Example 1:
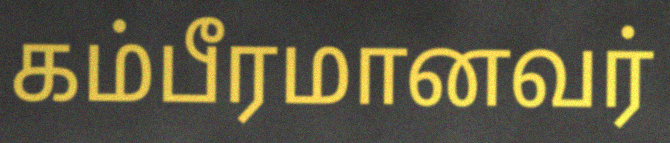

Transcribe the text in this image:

கம்பீரமானவர்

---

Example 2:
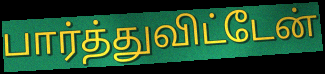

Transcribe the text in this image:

பார்த்துவிட்டேன்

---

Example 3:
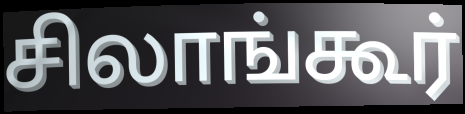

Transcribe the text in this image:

சிலாங்கூர்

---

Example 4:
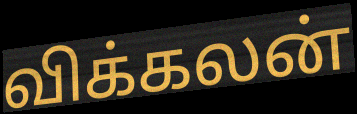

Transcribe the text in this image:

விக்கலன்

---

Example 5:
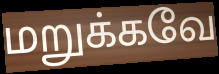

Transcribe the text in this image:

மறுக்கவே